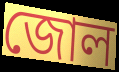
জোল